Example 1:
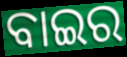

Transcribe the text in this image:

ବାଇର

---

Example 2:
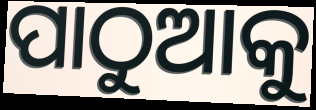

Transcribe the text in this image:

ପାଠୁଆକୁ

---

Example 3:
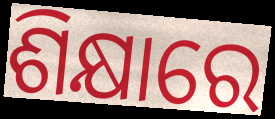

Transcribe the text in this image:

ଶିକ୍ଷାରେ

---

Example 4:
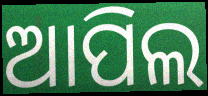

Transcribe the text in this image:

ଆପିଲ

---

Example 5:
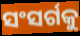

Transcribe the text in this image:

ସଂସର୍ଗକୁ